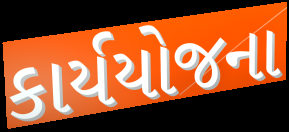
કાર્યયોજના